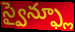
స్వైన్ఫ్లూ